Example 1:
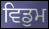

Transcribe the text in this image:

ਵਿਡੁਮ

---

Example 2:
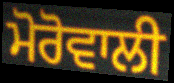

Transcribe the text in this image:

ਮੋਰੋਵਾਲੀ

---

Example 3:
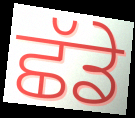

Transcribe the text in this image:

ਛੱਡੇ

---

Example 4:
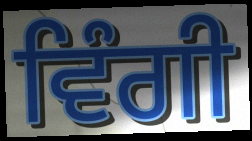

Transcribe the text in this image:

ਵਿੰਗੀ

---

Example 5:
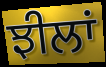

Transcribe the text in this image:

ਝੀਲਾਂ